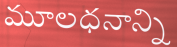
మూలధనాన్ని